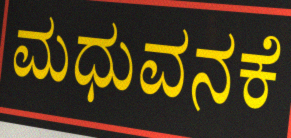
ಮಧುವನಕೆ